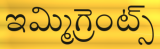
ఇమ్మిగ్రెంట్స్